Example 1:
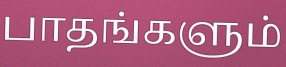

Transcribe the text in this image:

பாதங்களும்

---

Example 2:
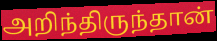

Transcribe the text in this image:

அறிந்திருந்தான்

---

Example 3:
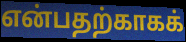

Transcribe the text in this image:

என்பதற்காகக்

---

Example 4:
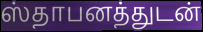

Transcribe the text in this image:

ஸ்தாபனத்துடன்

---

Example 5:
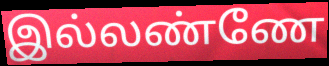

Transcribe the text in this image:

இல்லண்ணே